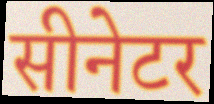
सीनेटर